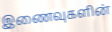
இணைவுகளின்